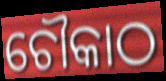
ଚୌକାଠ